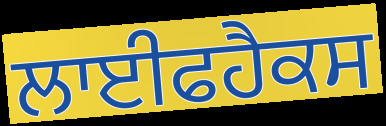
ਲਾਈਫਹੈਕਸ